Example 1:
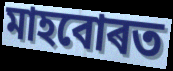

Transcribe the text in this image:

মাহবোৰত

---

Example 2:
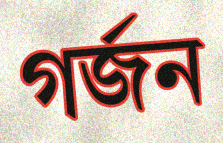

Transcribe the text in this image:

গৰ্জন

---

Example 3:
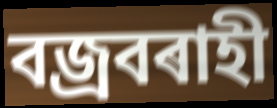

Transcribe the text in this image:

বজ্ৰবৰাহী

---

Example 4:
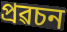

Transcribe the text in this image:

প্ৰৱচন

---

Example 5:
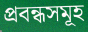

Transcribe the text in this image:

প্ৰবন্ধসমূহ